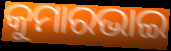
କୁମାରଭାଇ